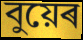
বুয়েৰ